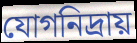
যোগনিদ্রায়